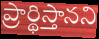
ప్రార్థిస్తానని